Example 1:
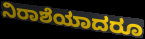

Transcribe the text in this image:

ನಿರಾಶೆಯಾದರೂ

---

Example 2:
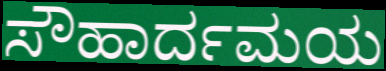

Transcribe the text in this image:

ಸೌಹಾರ್ದಮಯ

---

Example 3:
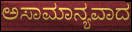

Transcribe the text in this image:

ಅಸಾಮಾನ್ಯವಾದ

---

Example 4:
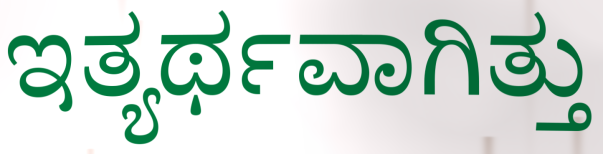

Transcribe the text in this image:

ಇತ್ಯರ್ಥವಾಗಿತ್ತು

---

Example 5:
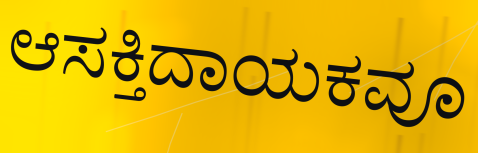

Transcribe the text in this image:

ಆಸಕ್ತಿದಾಯಕವೂ